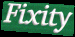
Fixity